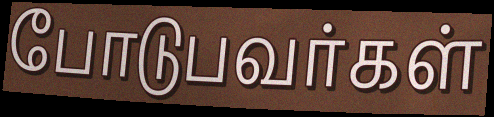
போடுபவர்கள்